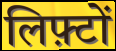
लिफ़्टों